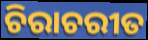
ଚିରାଚରୀତ